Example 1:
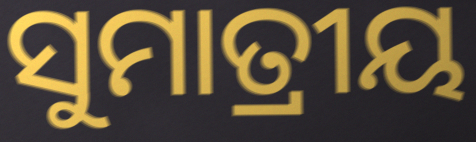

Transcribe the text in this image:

ସୁମାତ୍ରୀୟ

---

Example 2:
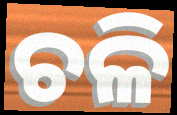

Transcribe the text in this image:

ଚଳି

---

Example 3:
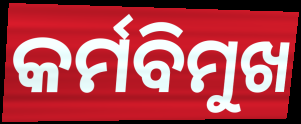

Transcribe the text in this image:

କର୍ମବିମୁଖ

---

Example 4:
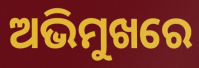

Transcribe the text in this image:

ଅଭିମୁଖରେ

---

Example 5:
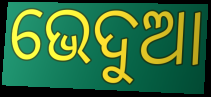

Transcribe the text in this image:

ଭେଦୁଆ